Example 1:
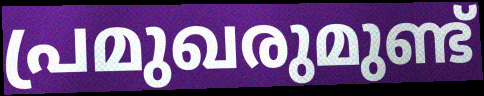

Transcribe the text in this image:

പ്രമുഖരുമുണ്ട്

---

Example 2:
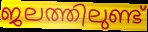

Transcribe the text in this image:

ജലത്തിലുണ്ട്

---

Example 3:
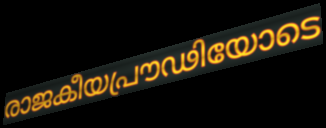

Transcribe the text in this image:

രാജകീയപ്രൗഢിയോടെ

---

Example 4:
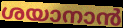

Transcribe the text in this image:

ശയാനാൻ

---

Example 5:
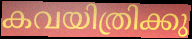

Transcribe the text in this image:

കവയിത്രിക്കു